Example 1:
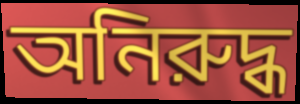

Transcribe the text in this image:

অনিৰুদ্ধ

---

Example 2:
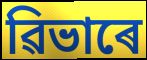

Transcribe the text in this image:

ৱিভাৰে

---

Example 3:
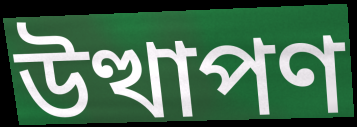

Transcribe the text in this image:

উত্থাপণ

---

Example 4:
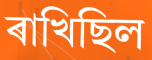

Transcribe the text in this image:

ৰাখিছিল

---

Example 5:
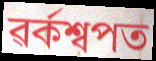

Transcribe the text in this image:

ৱৰ্কশ্বপত